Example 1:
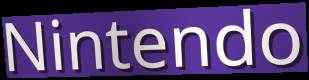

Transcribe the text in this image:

Nintendo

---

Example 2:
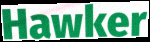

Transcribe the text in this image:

Hawker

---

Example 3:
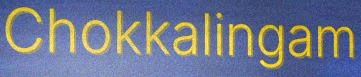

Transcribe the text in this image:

Chokkalingam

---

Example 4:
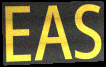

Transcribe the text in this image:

EAS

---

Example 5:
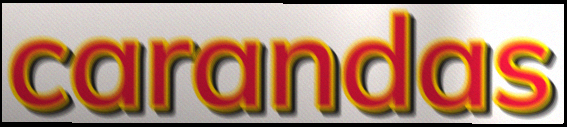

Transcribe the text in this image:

carandas